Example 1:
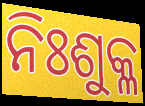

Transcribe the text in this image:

ନିଃଶୁକ୍ଳ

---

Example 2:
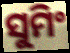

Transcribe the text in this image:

ସୁମିଂ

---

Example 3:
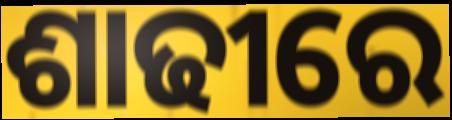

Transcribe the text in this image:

ଶାଢୀରେ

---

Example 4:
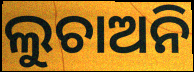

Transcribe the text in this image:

ଲୁଚାଅନି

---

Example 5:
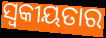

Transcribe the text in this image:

ସ୍ୱକୀୟତାର